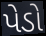
પેડો